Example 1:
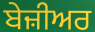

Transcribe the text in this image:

ਬੇਜ਼ੀਅਰ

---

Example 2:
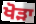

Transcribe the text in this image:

ਖੋੜਾ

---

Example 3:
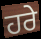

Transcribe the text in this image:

ਹਰੇ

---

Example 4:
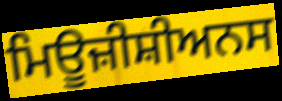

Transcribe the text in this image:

ਮਿਊਜ਼ੀਸ਼ੀਅਨਸ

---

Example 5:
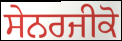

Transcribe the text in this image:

ਸੇਨਰਜੀਕੋ